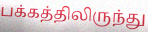
பக்கத்திலிருந்து